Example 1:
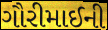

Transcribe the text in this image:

ગૌરીમાઈની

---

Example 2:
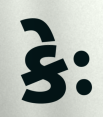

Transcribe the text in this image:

કેઃ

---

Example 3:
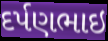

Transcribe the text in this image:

દર્પણભાઇ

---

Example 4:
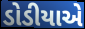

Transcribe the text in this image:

ડોડીયાએ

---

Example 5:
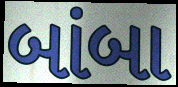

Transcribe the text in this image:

બાંબા